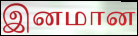
இனமான